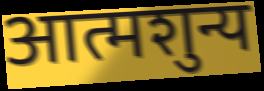
आत्मशुन्य